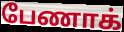
பேணாக்